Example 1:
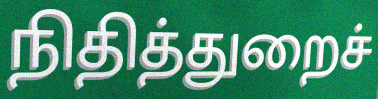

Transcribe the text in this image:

நிதித்துறைச்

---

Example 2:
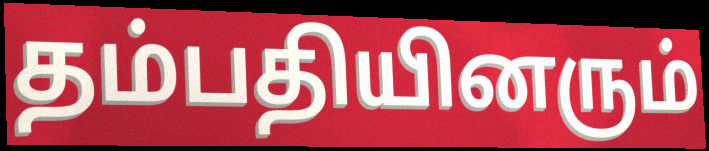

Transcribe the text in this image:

தம்பதியினரும்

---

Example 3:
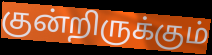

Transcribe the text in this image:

குன்றிருக்கும்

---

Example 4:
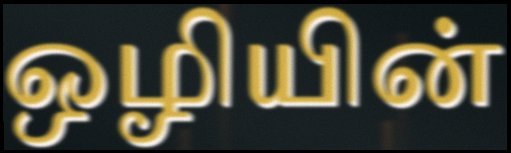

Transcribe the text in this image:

ஒழியின்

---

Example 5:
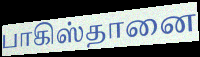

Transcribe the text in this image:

பாகிஸ்தானை